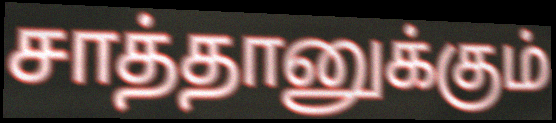
சாத்தானுக்கும்